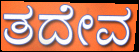
ತದೇವ